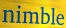
nimble